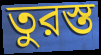
তুরস্ত